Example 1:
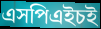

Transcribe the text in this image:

এসপিএইচই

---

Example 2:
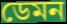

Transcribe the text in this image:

ডেমন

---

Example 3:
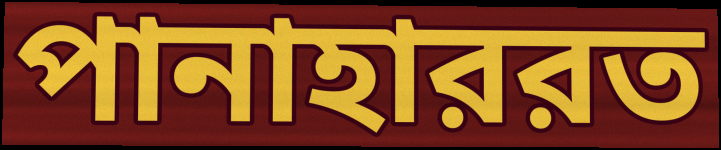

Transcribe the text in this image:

পানাহাররত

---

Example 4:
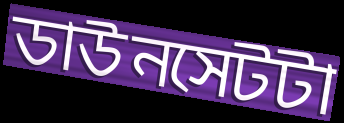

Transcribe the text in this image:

ডাউনসেটটা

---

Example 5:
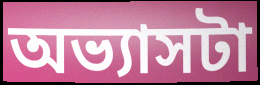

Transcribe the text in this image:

অভ্যাসটা